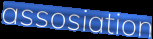
assosiation